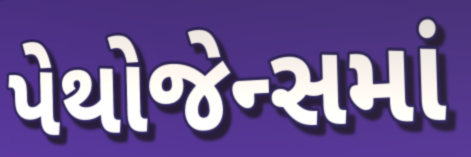
પેથોજેન્સમાં